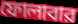
ফোলাবার